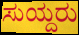
ಸುಯ್ದರು